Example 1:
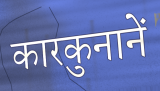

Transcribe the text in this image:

कारकुनानें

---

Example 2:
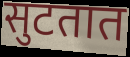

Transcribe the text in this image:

सुटतात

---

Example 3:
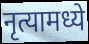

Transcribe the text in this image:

नृत्यामध्ये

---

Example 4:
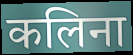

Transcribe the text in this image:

कलिना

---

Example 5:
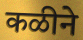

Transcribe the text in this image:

कळीने